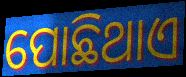
ପୋଛିଥାଏ